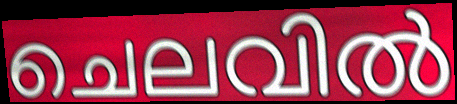
ചെലവിൽ